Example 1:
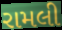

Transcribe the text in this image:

રામલી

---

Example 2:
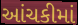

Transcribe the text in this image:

આંચકીમાં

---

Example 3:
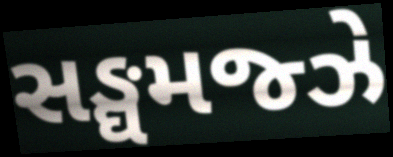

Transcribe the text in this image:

સઙ્ઘમજ્ઝે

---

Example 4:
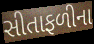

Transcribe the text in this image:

સીતાફળીના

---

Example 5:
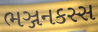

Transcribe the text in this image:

ભઞ્જનકસ્સ